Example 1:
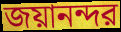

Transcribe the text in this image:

জয়ানন্দর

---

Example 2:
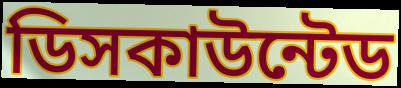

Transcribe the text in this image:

ডিসকাউন্টেড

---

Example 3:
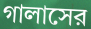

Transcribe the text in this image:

গালাসের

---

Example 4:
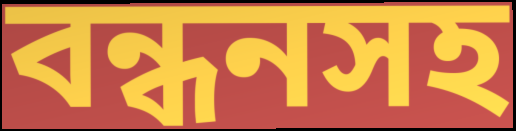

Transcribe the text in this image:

বন্ধনসহ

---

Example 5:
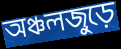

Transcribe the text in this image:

অঞ্চলজুড়ে